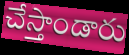
చేస్తాండారు